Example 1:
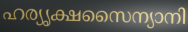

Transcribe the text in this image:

ഹര്യൃക്ഷസൈന്യാനി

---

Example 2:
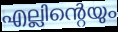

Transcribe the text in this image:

എല്ലിന്റെയും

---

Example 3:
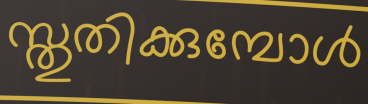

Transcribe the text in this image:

സ്തുതിക്കുമ്പോൾ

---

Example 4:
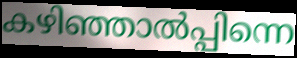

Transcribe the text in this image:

കഴിഞ്ഞാൽപ്പിന്നെ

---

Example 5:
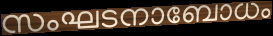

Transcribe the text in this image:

സംഘടനാബോധം